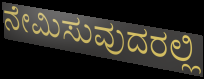
ನೇಮಿಸುವುದರಲ್ಲಿ